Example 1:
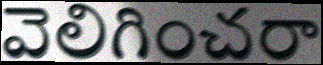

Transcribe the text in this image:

వెలిగించరా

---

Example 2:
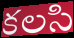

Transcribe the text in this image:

కలసి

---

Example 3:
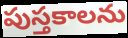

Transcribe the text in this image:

పుస్తకాలను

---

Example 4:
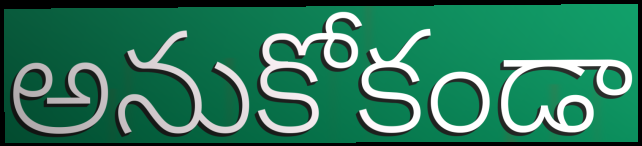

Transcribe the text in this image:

అనుకోకండా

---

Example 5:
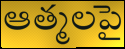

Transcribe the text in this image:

ఆత్మలపై